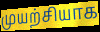
முயற்சியாக